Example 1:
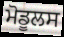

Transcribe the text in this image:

ਮੋਡੂਲਸ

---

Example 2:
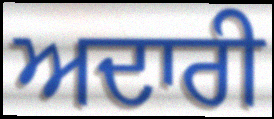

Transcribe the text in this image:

ਅਦਾਰੀ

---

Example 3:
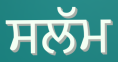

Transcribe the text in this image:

ਸਲੱਮ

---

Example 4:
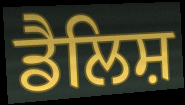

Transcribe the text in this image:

ਡੈਲਿਸ਼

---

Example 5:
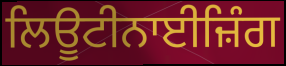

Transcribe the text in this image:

ਲਿਊਟੀਨਾਈਜ਼ਿੰਗ